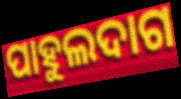
ପାହୁଲଦାଗ